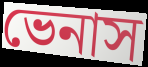
ভেনাস